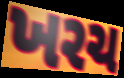
ખરચ